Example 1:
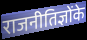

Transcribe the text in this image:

राजनीतिज्ञोंके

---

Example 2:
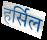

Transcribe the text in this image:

हर्सिल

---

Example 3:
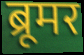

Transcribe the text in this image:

ब्रूमर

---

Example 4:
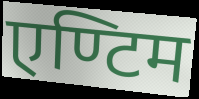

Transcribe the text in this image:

एण्टिम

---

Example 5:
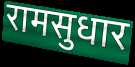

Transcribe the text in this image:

रामसुधार